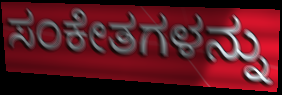
ಸಂಕೇತಗಳನ್ನು